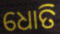
ଧୋତି